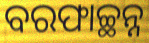
ବରଫାଚ୍ଛନ୍ନ